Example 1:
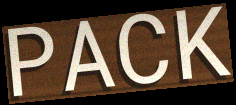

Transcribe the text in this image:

PACK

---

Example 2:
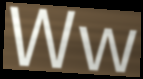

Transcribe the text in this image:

Ww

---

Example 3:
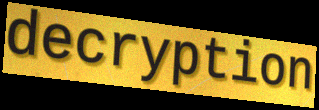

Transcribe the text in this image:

decryption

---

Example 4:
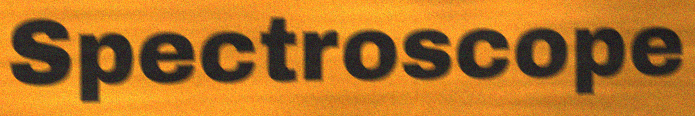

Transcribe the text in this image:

Spectroscope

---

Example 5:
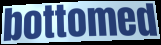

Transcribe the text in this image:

bottomed